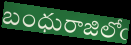
బంధురాజిలోఁ